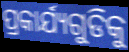
ପ୍ରକାର୍ଯ୍ୟଗୁଡିକୁ